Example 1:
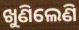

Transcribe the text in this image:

ଖୁଣିଲେଣି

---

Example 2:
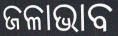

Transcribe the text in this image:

ଜଳାଭାବ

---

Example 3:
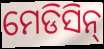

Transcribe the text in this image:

ମେଡିସିନ୍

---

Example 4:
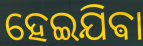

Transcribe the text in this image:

ହେଇଯିଵା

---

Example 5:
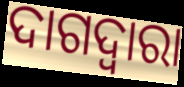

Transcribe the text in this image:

ଦାଗଦ୍ୱାରା